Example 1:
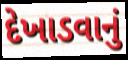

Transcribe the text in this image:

દેખાડવાનું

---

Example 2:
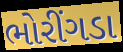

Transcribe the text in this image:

ભોરીંગડા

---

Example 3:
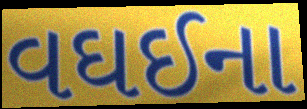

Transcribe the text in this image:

વઘઈના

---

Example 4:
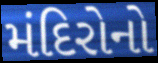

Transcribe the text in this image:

મંદિરોનો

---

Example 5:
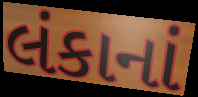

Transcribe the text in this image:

લંકાનાં